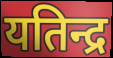
यतिन्द्र